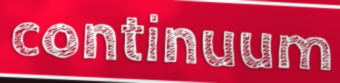
continuum